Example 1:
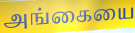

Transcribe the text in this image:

அங்கையை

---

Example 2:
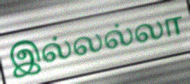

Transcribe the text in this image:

இல்லல்லா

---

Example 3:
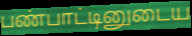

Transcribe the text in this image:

பண்பாட்டினுடைய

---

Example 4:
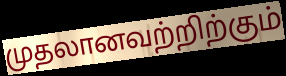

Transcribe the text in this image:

முதலானவற்றிற்கும்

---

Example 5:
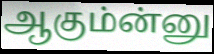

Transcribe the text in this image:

ஆகும்ன்னு